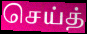
செய்த்